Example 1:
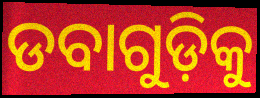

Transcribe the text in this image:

ଡବାଗୁଡ଼ିକୁ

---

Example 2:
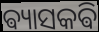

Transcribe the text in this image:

ଵ୍ୟାସକଵି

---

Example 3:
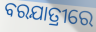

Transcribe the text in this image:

ବରଯାତ୍ରୀରେ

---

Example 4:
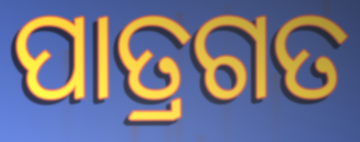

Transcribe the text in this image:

ପାତ୍ରଗତ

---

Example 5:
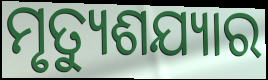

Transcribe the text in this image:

ମୃତ୍ୟୁଶଯ୍ୟାର